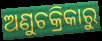
ଅଣୁଚକ୍ରିକାରୁ